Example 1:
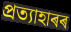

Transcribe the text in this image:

প্ৰত্যাহাৰৰ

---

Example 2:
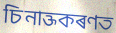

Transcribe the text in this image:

চিনাক্তকৰণত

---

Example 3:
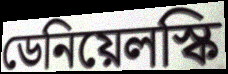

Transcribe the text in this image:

ডেনিয়েলস্কি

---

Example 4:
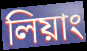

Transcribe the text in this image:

লিয়াং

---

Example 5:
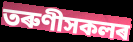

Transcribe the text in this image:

তৰুণীসকলৰ